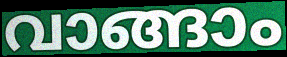
വാങ്ങാം